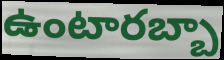
ఉంటారబ్బా